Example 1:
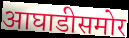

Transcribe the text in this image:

आघाडीसमोर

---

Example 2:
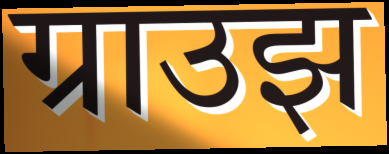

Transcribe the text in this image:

ग्राउझ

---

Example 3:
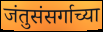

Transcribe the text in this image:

जंतुसंसर्गाच्या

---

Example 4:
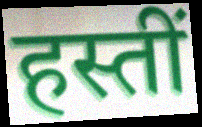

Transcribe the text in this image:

हस्तीं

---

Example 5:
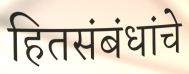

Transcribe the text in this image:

हितसंबंधांचे